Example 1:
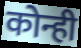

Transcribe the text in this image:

कोन्ही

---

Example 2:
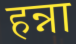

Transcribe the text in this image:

हन्ना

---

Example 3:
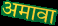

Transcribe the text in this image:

अमावा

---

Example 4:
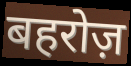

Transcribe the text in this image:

बहरोज़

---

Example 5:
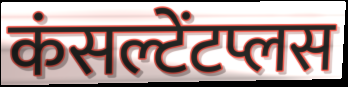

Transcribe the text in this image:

कंसल्टेंटप्लस